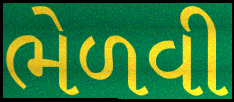
ભેળવી